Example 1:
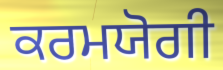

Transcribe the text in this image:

ਕਰਮਯੋਗੀ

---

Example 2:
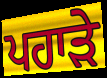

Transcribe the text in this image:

ਪਹਾੜੇ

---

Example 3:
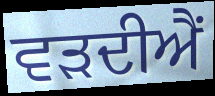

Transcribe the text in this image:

ਵੜਦੀਐਂ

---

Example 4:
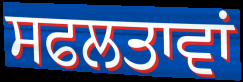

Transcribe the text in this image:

ਸਫਲਤਾਵਾਂ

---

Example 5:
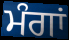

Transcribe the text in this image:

ਮੰਗਾਂ